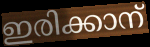
ഇരിക്കാന്